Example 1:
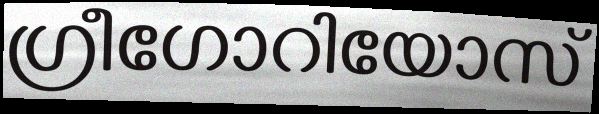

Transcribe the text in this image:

ഗ്രീഗോറിയോസ്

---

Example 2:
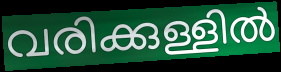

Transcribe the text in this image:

വരിക്കുള്ളിൽ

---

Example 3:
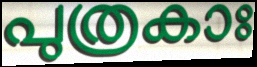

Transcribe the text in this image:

പുത്രകാഃ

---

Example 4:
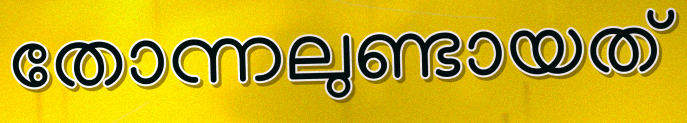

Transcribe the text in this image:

തോന്നലുണ്ടായത്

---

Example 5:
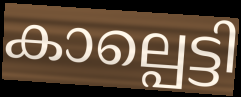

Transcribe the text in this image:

കാല്പെട്ടി